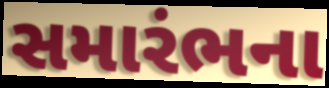
સમારંભના